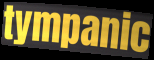
tympanic